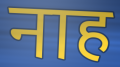
नाह